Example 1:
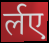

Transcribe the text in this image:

र्लए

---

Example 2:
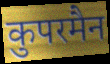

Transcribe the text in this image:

कुपरमैन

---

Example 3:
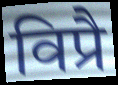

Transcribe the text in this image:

विप्रै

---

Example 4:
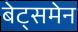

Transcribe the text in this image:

बेट्समेन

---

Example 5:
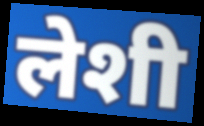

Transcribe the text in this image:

लेशी